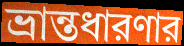
ভ্রান্তধারণার